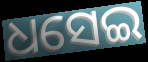
ଧସେଇ